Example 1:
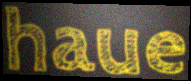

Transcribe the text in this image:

haue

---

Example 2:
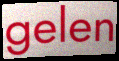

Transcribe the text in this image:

gelen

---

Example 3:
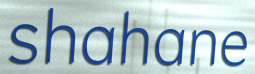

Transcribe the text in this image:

shahane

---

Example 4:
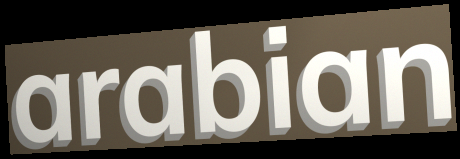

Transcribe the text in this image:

arabian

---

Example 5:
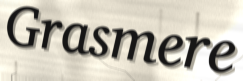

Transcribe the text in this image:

Grasmere